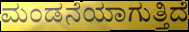
ಮಂಡನೆಯಾಗುತ್ತಿದೆ